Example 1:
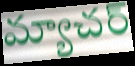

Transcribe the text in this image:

మ్యాచర్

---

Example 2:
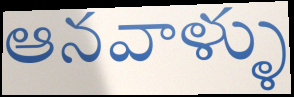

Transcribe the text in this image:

ఆనవాళ్ళు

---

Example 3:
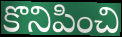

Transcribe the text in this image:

కొనిపించి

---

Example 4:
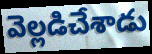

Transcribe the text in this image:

వెల్లడిచేశాడు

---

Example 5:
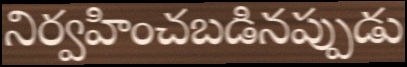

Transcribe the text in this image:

నిర్వహించబడినప్పుడు